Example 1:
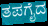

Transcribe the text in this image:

ತಪಗೈದ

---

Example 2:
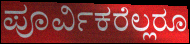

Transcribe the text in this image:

ಪೂರ್ವಿಕರೆಲ್ಲರೂ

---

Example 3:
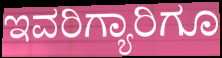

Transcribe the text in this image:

ಇವರಿಗ್ಯಾರಿಗೂ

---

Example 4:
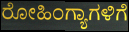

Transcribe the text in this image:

ರೋಹಿಂಗ್ಯಾಗಳಿಗೆ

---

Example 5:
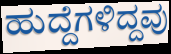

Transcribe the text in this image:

ಹುದ್ದೆಗಳಿದ್ದವು